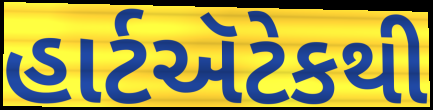
હાર્ટઍટેકથી